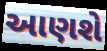
આણશે